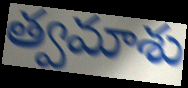
త్వమాశు